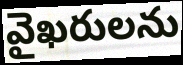
వైఖరులను